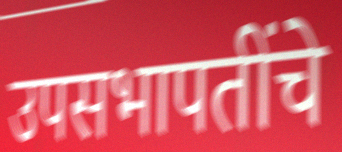
उपसभापतींचे